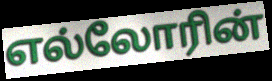
எல்லோரின்